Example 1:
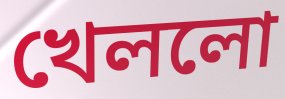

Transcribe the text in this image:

খেললো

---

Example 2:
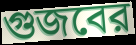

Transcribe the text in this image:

গুজবের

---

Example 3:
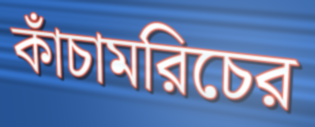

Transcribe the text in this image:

কাঁচামরিচের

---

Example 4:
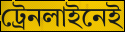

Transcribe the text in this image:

ট্রেনলাইনেই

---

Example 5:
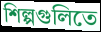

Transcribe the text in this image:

শিল্পগুলিতে